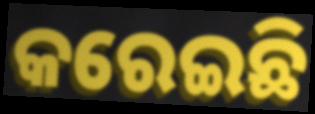
କରେଇଛି